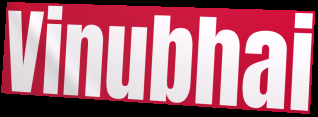
Vinubhai